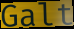
Galt